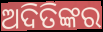
ଅଦିତିଙ୍କର